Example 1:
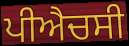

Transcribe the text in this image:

ਪੀਐਚਸੀ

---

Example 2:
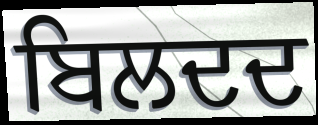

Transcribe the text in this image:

ਬਿਲਦਦ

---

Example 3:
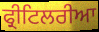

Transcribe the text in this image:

ਫ੍ਰੀਟਿਲਰੀਆ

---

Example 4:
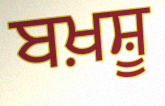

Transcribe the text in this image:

ਬਖ਼ਸ਼ੂ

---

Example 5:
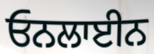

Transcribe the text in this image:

ਓਨਲਾਈਨ